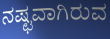
ನಷ್ಟವಾಗಿರುವ